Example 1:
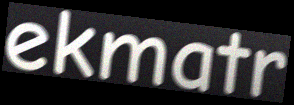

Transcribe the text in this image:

ekmatr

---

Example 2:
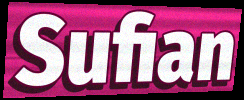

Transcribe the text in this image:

Sufian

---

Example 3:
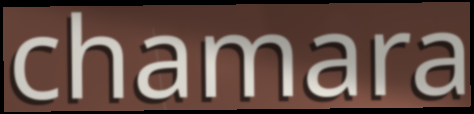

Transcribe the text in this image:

chamara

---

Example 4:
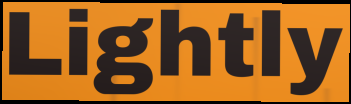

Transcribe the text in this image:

Lightly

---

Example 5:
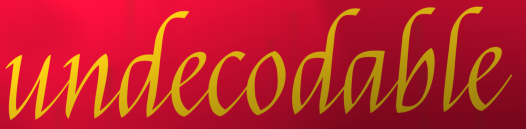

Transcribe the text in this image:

undecodable